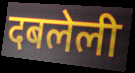
दबलेली